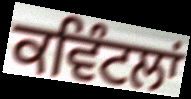
ਕਵਿੰਟਲਾਂ